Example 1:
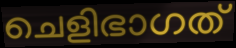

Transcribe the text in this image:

ചെളിഭാഗത്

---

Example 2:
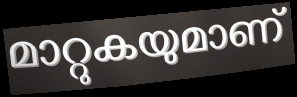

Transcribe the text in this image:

മാറ്റുകയുമാണ്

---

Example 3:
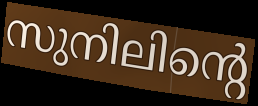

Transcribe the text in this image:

സുനിലിന്റെ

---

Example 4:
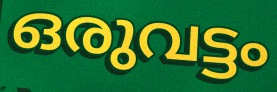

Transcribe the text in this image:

ഒരുവട്ടം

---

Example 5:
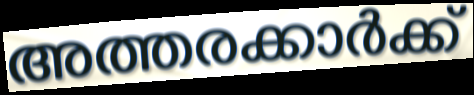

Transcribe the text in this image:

അത്തരക്കാർക്ക്